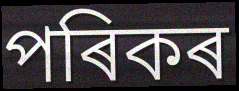
পৰিকৰ